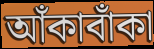
আঁকাবাঁকা